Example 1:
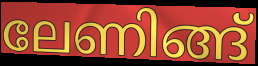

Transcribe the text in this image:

ലേണിങ്ങ്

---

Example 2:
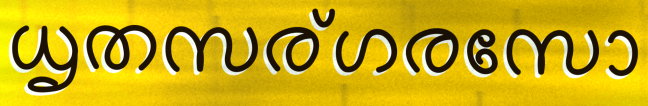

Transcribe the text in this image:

ധൃതസര്ഗരസോ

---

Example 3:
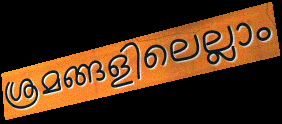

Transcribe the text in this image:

ശ്രമങ്ങളിലെല്ലാം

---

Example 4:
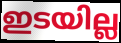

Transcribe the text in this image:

ഇടയില്ല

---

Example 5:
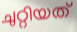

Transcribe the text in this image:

ചുറ്റിയത്